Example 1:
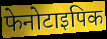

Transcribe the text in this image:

फेनोटाइपिक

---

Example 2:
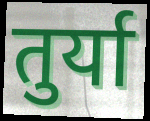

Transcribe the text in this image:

तुर्या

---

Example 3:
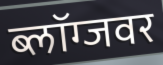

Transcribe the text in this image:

ब्लॉग्जवर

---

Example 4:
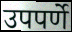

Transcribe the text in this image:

उपपर्णे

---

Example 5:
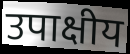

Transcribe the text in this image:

उपाक्षीय